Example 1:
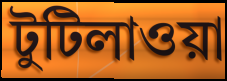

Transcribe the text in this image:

টুটিলাওয়া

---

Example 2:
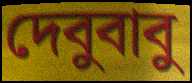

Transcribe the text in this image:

দেবুবাবু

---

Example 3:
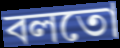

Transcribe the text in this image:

বলতো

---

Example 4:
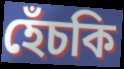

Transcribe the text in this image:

হেঁচকি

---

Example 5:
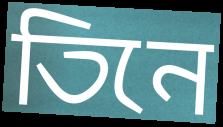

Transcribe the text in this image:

তিনে